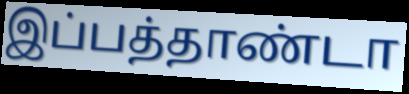
இப்பத்தாண்டா